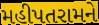
મહીપતરામને